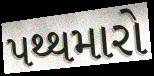
પથ્થમારો